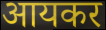
आयकर